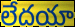
లేదయా